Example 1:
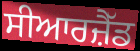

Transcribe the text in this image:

ਸੀਆਰਜ਼ੈੱਡ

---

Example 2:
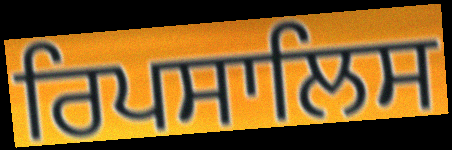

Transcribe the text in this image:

ਰਿਪਸਾਲਿਸ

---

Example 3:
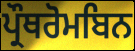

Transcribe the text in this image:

ਪ੍ਰੌਥਰੋਮਬਿਨ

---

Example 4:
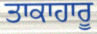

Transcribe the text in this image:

ਤਾਕਾਹਾਰੂ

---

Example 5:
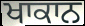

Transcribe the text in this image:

ਖਾਕਾਨ